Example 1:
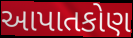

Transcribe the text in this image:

આપાતકોણ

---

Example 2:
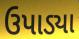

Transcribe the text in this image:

ઉપાડ્યા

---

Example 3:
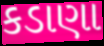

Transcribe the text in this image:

કડાણા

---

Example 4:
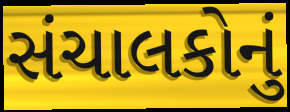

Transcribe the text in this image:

સંચાલકોનું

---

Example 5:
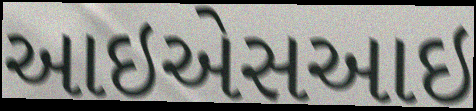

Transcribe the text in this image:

આઇએસઆઇ